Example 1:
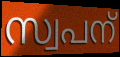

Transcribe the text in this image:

സ്വപന്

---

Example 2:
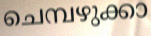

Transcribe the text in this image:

ചെമ്പഴുക്കാ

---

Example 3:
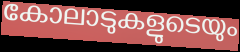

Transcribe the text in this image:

കോലാടുകളുടെയും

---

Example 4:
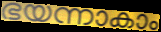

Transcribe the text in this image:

ഭയന്നാകാം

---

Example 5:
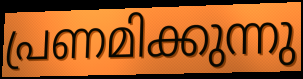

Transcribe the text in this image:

പ്രണമിക്കുന്നു